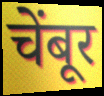
चेंबूर